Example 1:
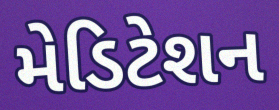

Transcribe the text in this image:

મેડિટેશન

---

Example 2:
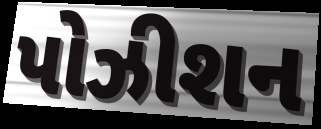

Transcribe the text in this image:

પોઝીશન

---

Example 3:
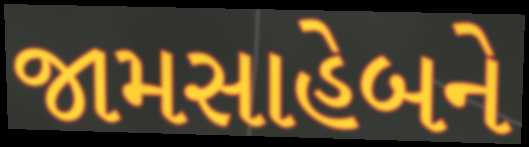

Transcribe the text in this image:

જામસાહેબને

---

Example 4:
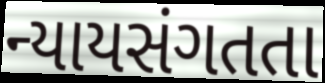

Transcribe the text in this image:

ન્યાયસંગતતા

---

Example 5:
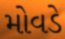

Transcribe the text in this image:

મોવડે